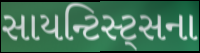
સાયન્ટિસ્ટ્સના